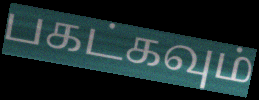
பகட்கவும்